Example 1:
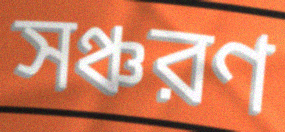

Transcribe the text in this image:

সঞ্চরণ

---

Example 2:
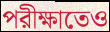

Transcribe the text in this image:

পরীক্ষাতেও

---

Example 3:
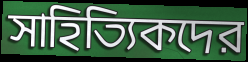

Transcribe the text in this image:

সাহিত্যিকদের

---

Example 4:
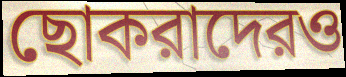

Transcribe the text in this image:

ছোকরাদেরও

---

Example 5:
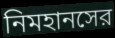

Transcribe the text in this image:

নিমহানসের